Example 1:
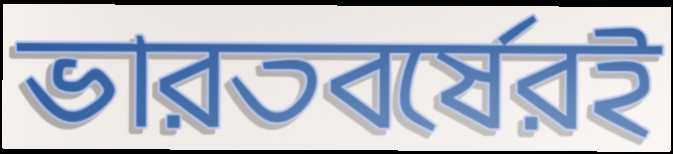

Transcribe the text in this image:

ভারতবর্ষেরই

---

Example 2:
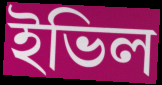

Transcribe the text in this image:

ইভিল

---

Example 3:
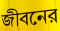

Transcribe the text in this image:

জীবনের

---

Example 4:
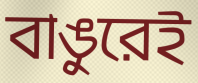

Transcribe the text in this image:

বাঙুরেই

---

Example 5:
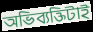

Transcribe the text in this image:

অভিব্যক্তিটাই